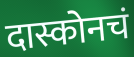
दास्कोनचं